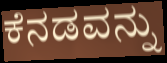
ಕೆನಡವನ್ನು